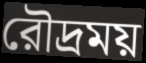
রৌদ্রময়